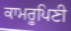
ਕਾਮਰੂਪਿਣੀ